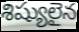
శిష్యులైన